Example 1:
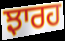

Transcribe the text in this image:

ਝਾਰਹ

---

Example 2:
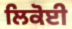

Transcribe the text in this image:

ਲਿਕੋਈ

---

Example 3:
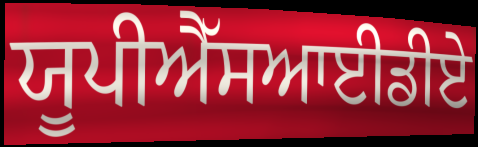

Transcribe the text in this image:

ਯੂਪੀਐੱਸਆਈਡੀਏ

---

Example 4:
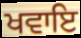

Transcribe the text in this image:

ਖਵਾਇ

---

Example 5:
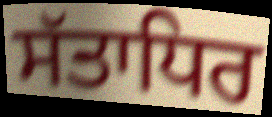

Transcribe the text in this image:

ਸੱਤਾਧਿਰ